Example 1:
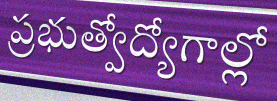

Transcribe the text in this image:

ప్రభుత్వోద్యోగాల్లో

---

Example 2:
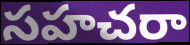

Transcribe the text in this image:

సహచరా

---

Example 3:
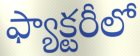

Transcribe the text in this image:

ఫ్యాక్టరీలో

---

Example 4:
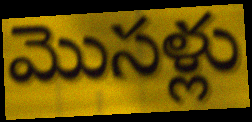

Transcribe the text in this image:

మొసళ్లు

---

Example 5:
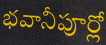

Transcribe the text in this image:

భవానీపూర్లో